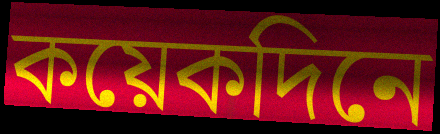
কয়েকদিনে